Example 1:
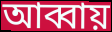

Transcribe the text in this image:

আব্বায়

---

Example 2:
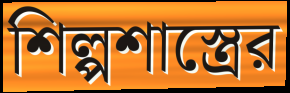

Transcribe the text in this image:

শিল্পশাস্ত্রের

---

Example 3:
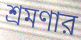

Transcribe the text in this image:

শ্রমণার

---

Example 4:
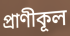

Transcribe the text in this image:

প্রাণীকূল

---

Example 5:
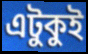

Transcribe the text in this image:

এটুকুই